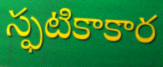
స్ఫటికాకార